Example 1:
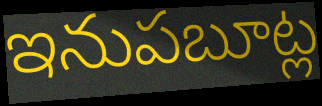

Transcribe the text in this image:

ఇనుపబూట్ల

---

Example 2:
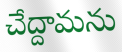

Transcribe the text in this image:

చేద్దామను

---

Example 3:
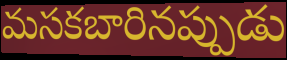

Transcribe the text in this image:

మసకబారినప్పుడు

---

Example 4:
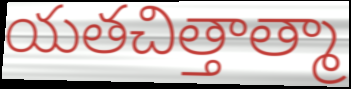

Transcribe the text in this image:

యతచిత్తాత్మా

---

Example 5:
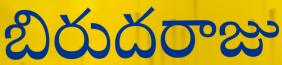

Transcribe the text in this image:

బిరుదరాజు